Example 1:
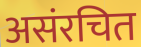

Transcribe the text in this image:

असंरचित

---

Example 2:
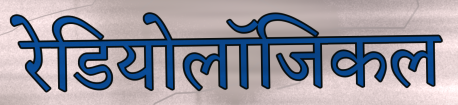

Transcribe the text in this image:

रेडियोलॉजिकल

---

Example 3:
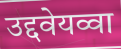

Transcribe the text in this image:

उद्दवेयव्वा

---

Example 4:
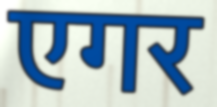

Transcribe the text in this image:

एगर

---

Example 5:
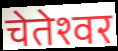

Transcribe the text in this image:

चेतेश्वर